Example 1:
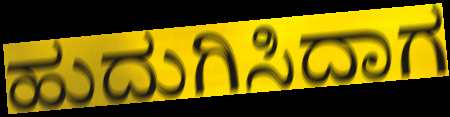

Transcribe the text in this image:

ಹುದುಗಿಸಿದಾಗ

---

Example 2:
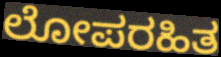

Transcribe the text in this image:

ಲೋಪರಹಿತ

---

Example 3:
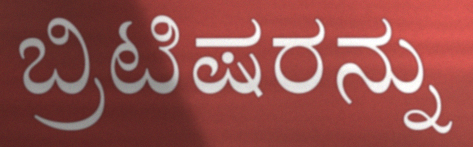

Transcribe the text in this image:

ಬ್ರಿಟಿಷರನ್ನು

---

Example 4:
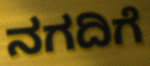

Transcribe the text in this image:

ನಗದಿಗೆ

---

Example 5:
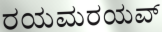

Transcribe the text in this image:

ರಯಮರಯವ್